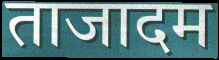
ताजादम